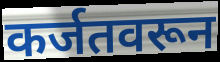
कर्जतवरून